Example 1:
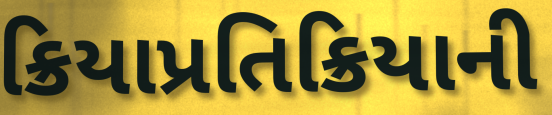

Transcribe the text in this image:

ક્રિયાપ્રતિક્રિયાની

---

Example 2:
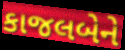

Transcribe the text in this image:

કાજલબેને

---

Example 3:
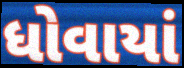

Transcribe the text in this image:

ધોવાયાં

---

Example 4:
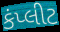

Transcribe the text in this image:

કંપ્લીટ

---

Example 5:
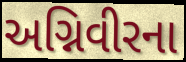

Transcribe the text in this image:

અગ્નિવીરના